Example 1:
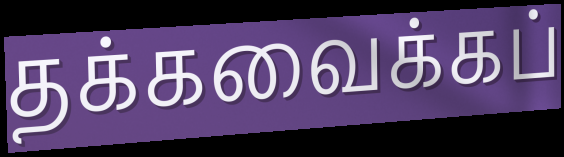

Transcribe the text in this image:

தக்கவைக்கப்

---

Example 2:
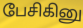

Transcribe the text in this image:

பேசிகினு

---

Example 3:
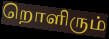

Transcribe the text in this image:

றொளிரும்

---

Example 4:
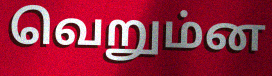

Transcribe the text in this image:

வெறும்ன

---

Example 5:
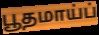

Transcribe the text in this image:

பூதமாய்ப்